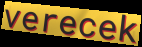
verecek